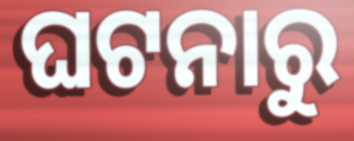
ଘଟନାରୁ